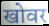
खोवर